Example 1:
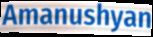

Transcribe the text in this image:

Amanushyan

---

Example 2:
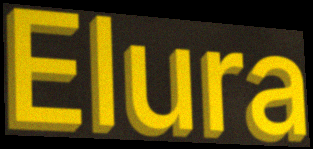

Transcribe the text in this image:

Elura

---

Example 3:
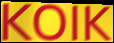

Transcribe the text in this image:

KOIK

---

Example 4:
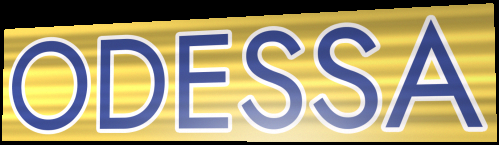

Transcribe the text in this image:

ODESSA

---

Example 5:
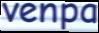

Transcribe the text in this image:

venpa